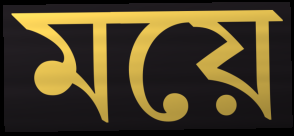
ময়ে